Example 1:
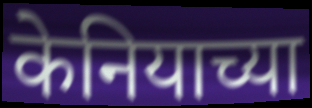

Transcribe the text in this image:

केनियाच्या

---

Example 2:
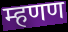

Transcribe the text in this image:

म्हणण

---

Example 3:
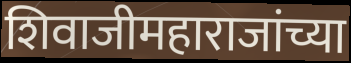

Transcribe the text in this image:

शिवाजीमहाराजांच्या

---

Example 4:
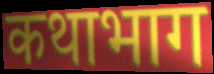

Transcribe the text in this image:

कथाभाग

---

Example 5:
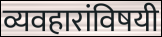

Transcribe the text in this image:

व्यवहारांविषयी